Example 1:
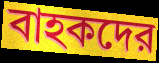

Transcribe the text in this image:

বাহকদের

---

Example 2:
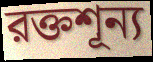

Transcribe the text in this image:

রক্তশূন্য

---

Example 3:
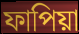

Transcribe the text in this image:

ফাপিয়া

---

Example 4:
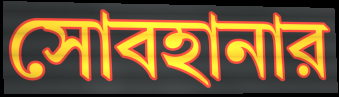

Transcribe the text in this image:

সোবহানার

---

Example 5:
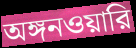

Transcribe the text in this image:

অঙ্গনওয়ারি